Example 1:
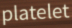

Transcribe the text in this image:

platelet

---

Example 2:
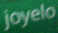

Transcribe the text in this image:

joyelo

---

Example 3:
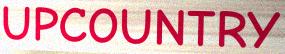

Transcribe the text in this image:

UPCOUNTRY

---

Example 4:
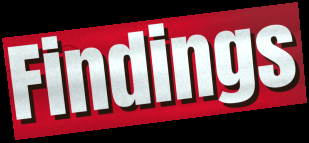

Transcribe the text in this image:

Findings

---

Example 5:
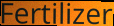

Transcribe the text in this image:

Fertilizer